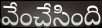
వేంచేసింది